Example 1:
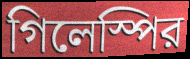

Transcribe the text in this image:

গিলেস্পির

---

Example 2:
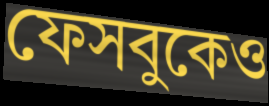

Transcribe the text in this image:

ফেসবুকেও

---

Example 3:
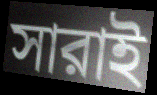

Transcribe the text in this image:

সারাই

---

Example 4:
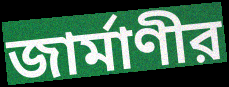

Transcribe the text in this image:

জার্মাণীর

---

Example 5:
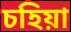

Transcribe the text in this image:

চহিয়া